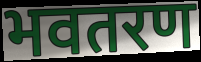
भवतरण